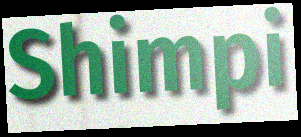
Shimpi